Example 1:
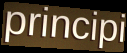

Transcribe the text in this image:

principi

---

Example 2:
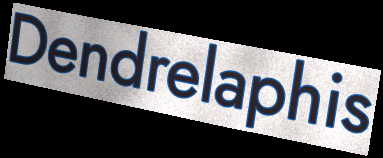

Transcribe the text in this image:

Dendrelaphis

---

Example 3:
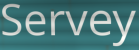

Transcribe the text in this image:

Servey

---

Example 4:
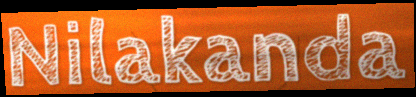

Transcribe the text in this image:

Nilakanda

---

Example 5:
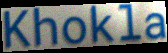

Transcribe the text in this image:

Khokla